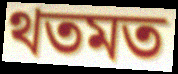
থতমত